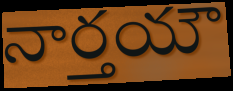
నార్తయౌ